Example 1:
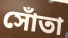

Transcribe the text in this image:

সোঁতা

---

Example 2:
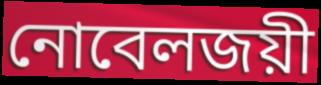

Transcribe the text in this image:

নোবেলজয়ী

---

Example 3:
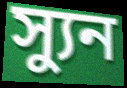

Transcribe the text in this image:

স্যুন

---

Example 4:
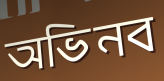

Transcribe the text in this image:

অভিনব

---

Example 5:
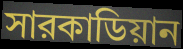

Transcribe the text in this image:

সারকাডিয়ান